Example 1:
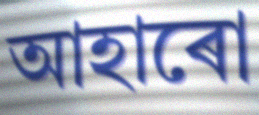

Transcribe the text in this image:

আহাৰো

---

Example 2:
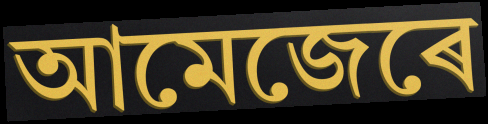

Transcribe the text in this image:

আমেজেৰে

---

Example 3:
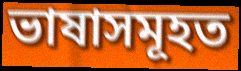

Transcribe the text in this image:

ভাষাসমূহত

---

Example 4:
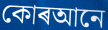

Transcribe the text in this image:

কোৰআনে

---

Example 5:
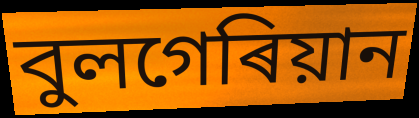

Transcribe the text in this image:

বুলগেৰিয়ান